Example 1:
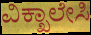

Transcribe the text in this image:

ವಿಕ್ಖಾಲೇಸಿ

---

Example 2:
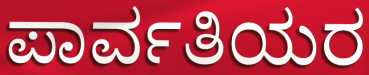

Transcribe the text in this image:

ಪಾರ್ವತಿಯರ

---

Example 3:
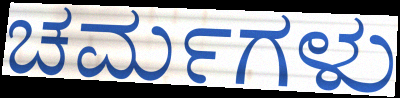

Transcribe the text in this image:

ಚರ್ಮಗಳು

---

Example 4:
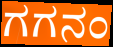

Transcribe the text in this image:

ಗಗನಂ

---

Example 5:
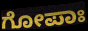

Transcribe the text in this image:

ಗೋಪಾಃ